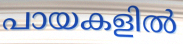
പായകളിൽ